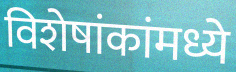
विशेषांकांमध्ये